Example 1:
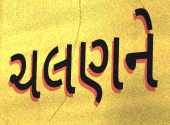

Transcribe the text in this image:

ચલણને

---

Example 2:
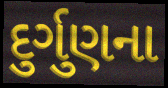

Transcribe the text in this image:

દુર્ગુણના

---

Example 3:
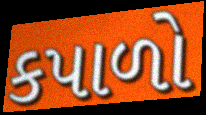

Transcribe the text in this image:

કપાળો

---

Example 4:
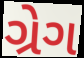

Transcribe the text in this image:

ગ્રેગ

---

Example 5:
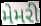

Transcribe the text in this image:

મેમરી